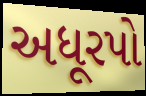
અધૂરપો